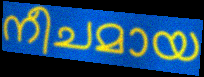
നീചമായ